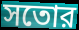
সতোর